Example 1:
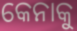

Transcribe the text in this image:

କେନାକୁ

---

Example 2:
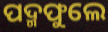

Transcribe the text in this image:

ପଦ୍ମଫୁଲେ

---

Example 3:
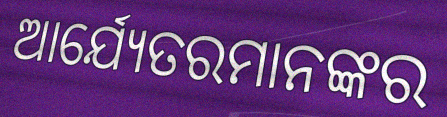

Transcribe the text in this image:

ଆର୍ଯ୍ୟେତରମାନଙ୍କର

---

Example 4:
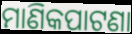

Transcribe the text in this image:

ମାଣିକପାଟଣା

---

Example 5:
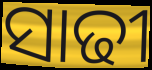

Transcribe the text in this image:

ସାଢୀ